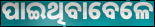
ପାଇଥିବାବେଳେ